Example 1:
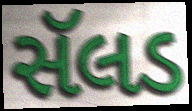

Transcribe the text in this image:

સૅલડ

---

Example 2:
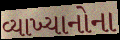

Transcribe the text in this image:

વ્યાખ્યાનોના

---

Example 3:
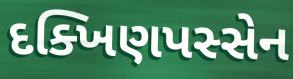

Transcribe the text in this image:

દક્ખિણપસ્સેન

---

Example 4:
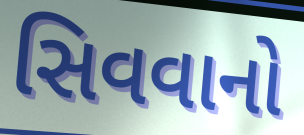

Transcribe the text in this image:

સિવવાનો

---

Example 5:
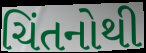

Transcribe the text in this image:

ચિંતનોથી